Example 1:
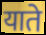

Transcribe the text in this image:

याते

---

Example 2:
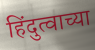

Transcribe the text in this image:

हिंदुत्वाच्या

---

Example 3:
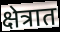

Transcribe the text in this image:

क्षेत्रात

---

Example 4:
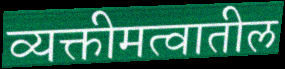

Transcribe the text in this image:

व्यक्तीमत्वातील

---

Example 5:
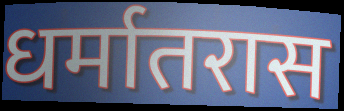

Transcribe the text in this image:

धर्मातरास